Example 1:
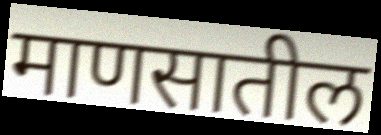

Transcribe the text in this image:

माणसातील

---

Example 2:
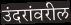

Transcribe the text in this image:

उंदरांवरील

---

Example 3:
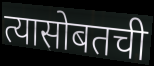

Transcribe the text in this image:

त्यासोबतची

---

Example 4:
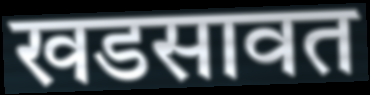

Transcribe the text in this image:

खडसावत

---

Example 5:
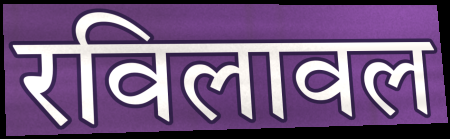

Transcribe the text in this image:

रविलावल